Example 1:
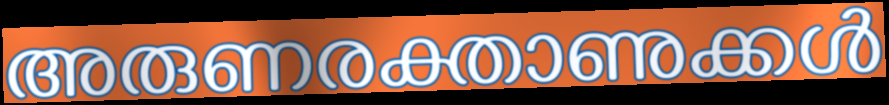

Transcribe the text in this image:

അരുണരക്താണുക്കൾ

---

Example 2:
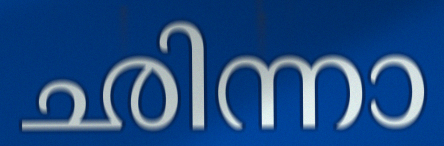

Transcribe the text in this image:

ഛിന്നാ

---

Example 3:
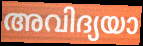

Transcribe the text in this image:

അവിദ്യയാ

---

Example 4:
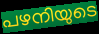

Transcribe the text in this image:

പഴനിയുടെ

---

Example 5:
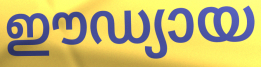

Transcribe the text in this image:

ഈഡ്യായ